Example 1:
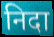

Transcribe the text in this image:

निदा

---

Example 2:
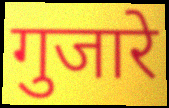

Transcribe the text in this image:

गुजारे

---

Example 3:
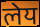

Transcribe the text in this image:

लेय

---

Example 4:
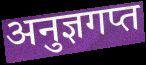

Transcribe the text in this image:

अनुज्ञगप्त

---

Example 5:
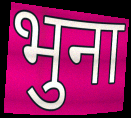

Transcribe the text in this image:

भुना